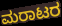
ಮರಾಟರ